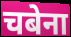
चबेना